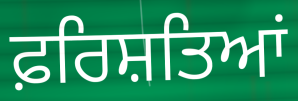
ਫ਼ਰਿਸ਼ਤਿਆਂ